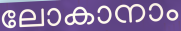
ലോകാനാം